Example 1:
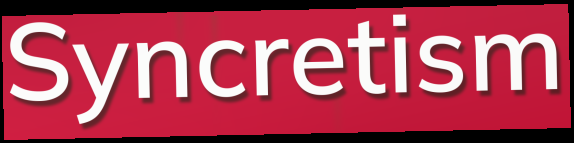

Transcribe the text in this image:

Syncretism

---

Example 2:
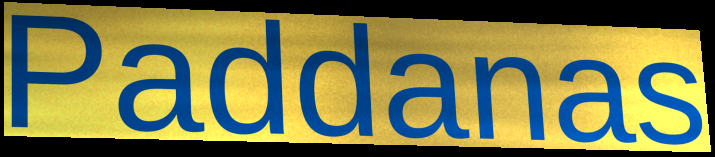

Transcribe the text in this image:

Paddanas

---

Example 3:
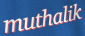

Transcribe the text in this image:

muthalik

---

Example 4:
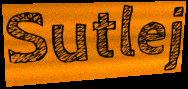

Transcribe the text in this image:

Sutlej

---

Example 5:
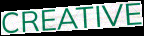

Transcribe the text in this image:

CREATIVE